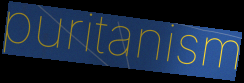
puritanism